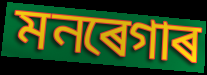
মনৰেগাৰ